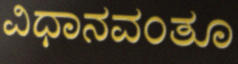
ವಿಧಾನವಂತೂ